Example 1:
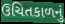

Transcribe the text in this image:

ઉચિતકાળનું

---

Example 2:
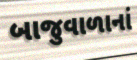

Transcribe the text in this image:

બાજુવાળાનાં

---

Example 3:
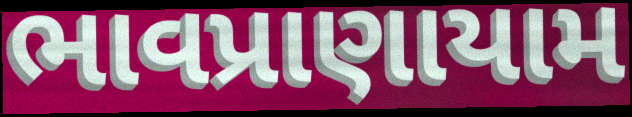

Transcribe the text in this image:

ભાવપ્રાણાયામ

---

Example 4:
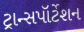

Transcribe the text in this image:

ટ્રાન્સપૉર્ટેશન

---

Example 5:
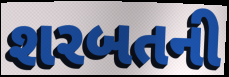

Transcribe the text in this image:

શરબતની